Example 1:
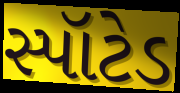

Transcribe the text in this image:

સ્પૉટેડ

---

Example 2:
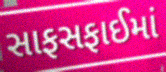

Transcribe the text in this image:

સાફસફાઈમાં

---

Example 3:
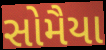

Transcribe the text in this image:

સોમૈયા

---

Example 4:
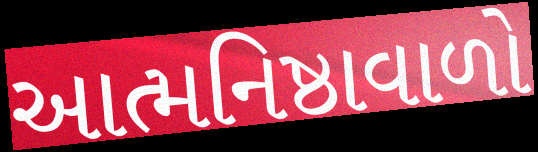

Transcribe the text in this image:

આત્મનિષ્ઠાવાળો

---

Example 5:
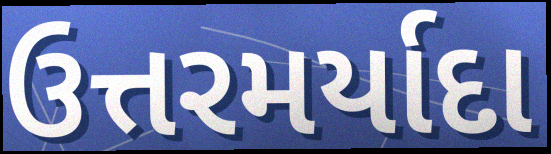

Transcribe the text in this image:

ઉત્તરમર્યાદા